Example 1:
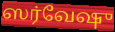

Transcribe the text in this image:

ஸர்வேஷு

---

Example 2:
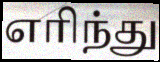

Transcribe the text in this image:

எரிந்து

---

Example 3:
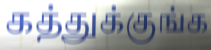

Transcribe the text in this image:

கத்துக்குங்க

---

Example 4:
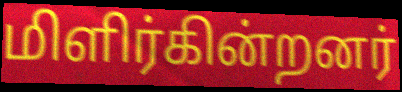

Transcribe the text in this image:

மிளிர்கின்றனர்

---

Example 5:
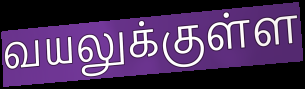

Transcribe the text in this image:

வயலுக்குள்ள